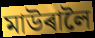
মাউৰালৈ